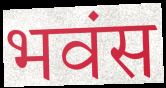
भवंस